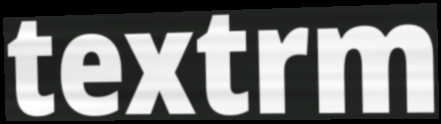
textrm